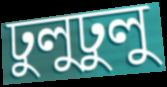
ঢুলুঢুলু